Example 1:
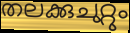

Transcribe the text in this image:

തലക്കുചുറ്റും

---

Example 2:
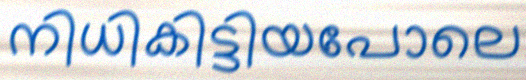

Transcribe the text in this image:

നിധികിട്ടിയപോലെ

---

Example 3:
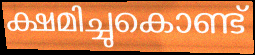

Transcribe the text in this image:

ക്ഷമിച്ചുകൊണ്ട്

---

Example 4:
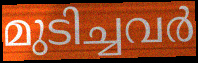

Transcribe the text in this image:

മുടിച്ചവർ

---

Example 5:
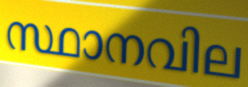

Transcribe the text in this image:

സ്ഥാനവില